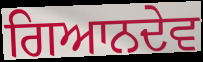
ਗਿਆਨਦੇਵ